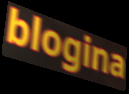
blogina